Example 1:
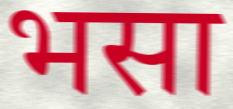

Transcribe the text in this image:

भसा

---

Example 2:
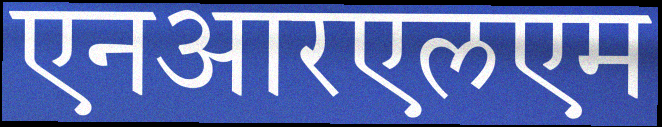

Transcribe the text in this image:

एनआरएलएम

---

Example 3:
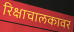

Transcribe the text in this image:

रिक्षाचालकावर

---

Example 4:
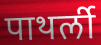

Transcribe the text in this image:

पाथर्ली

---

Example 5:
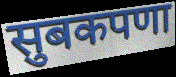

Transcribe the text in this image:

सुबकपणा